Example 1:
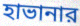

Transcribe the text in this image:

হাভানার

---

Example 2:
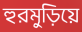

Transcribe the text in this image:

হুরমুড়িয়ে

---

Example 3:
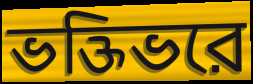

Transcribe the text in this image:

ভক্তিভরে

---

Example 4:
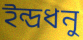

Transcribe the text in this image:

ইন্দ্রধনু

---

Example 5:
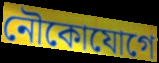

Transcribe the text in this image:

নৌকোযোগে